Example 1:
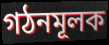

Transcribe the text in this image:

গঠনমূলক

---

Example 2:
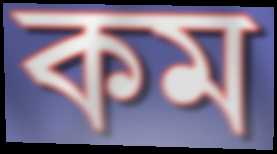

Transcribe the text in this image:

কম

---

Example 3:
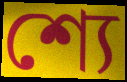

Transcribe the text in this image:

শ্যে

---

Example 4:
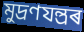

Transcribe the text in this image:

মুদ্ৰণযন্ত্ৰৰ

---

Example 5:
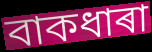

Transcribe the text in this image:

বাকধাৰা